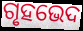
ଗୃହଭେଦ